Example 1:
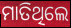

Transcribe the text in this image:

ମାତିଥିଲେ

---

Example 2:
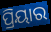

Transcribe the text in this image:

ପ୍ରିୟାର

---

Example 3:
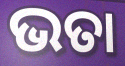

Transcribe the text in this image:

ଭତା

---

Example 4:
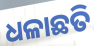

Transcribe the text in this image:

ଧଳାଛତି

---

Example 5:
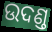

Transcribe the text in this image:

ଉଦଣ୍ଡ